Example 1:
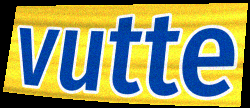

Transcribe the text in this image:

vutte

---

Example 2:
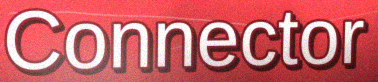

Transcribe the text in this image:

Connector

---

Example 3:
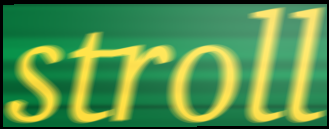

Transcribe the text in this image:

stroll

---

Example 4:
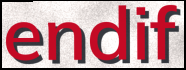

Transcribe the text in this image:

endif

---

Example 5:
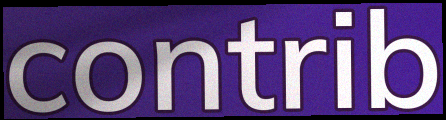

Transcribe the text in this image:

contrib